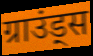
ग्राउंड्स